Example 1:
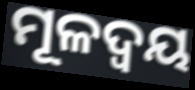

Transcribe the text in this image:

ମୂଳଦ୍ଵୟ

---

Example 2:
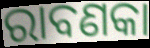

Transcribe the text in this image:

ରାବଣକା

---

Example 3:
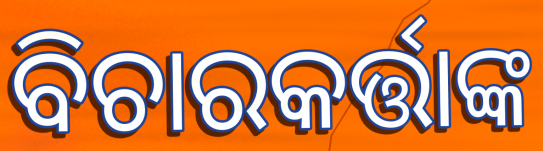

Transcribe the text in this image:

ବିଚାରକର୍ତ୍ତାଙ୍କ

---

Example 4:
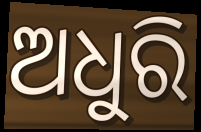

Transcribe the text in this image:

ଅଧୁରି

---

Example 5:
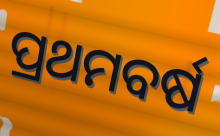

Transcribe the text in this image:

ପ୍ରଥମବର୍ଷ